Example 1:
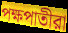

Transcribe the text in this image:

পক্ষপাতীরা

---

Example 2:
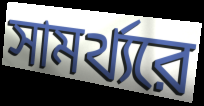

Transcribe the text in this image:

সামর্থ্যরে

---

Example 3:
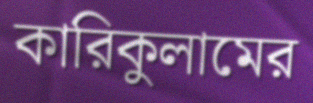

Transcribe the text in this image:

কারিকুলামের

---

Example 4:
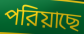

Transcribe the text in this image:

পরিয়াছে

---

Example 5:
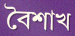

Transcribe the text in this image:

বৈশাখ